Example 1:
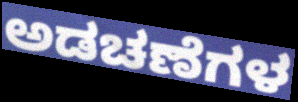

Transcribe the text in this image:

ಅಡಚಣೆಗಳ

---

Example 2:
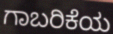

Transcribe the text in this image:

ಗಾಬರಿಕೆಯ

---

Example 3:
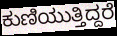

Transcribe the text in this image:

ಕುಣಿಯುತ್ತಿದ್ದರೆ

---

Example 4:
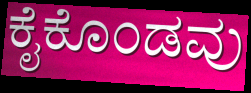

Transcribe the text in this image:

ಕೈಕೊಂಡವು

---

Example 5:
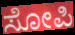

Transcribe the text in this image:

ಸೋಪಿ